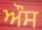
ਔਸ